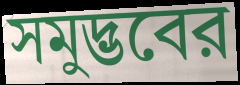
সমুদ্ভবের